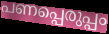
പണപ്പെരുപ്പം